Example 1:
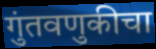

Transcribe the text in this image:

गुंतवणुकीचा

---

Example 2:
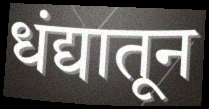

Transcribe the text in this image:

धंद्यातून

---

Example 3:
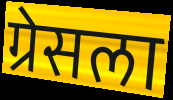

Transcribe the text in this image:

ग्रेसला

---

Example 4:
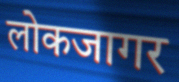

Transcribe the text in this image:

लोकजागर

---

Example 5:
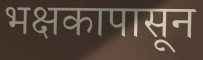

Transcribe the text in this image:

भक्षकापासून